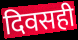
दिवसही